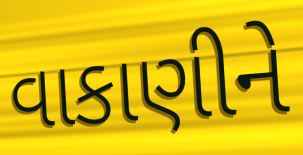
વાકાણીને